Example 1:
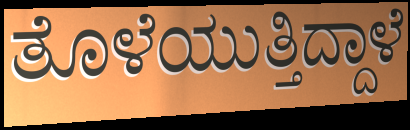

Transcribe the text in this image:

ತೊಳೆಯುತ್ತಿದ್ದಾಳೆ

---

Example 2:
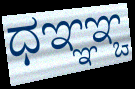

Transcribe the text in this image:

ಧಞ್ಞಞ್ಚ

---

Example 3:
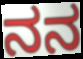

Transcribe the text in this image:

ನನ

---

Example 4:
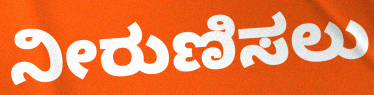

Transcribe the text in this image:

ನೀರುಣಿಸಲು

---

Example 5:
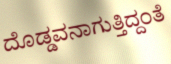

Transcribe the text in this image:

ದೊಡ್ಡವನಾಗುತ್ತಿದ್ದಂತೆ